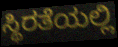
ಸ್ಥಿರತೆಯಲ್ಲಿ